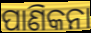
ପାଣିକନା